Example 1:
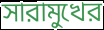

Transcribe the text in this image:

সারামুখের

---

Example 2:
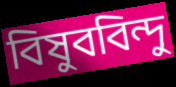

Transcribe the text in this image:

বিষুববিন্দু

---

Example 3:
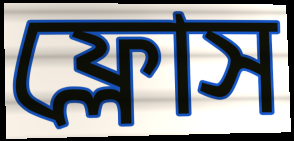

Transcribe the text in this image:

ফ্লোস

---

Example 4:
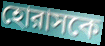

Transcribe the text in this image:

হোরাসকে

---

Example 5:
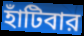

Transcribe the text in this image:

হাঁটিবার